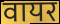
वायर